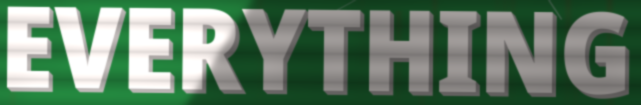
EVERYTHING